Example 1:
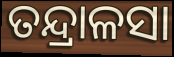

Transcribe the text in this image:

ତନ୍ଦ୍ରାଳସା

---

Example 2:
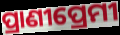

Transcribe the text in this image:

ପ୍ରାଣୀପ୍ରେମୀ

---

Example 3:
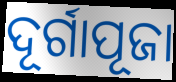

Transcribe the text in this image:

ଦୂର୍ଗାପୂଜା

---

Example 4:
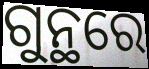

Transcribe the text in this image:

ଗୁନ୍ଥରେ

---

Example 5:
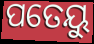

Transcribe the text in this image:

ପତେୟୁ